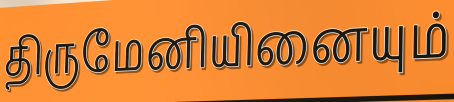
திருமேனியினையும்